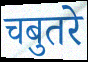
चबुतरे